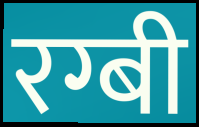
रग्बी